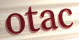
otac